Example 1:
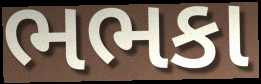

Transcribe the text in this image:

ભભકા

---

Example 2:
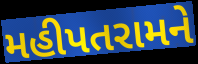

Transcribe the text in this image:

મહીપતરામને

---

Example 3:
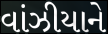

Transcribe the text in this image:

વાંઝીયાને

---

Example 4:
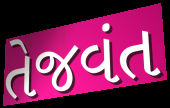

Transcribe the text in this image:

તેજવંત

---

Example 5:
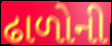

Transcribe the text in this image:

ઢાળોની